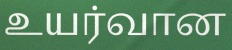
உயர்வான